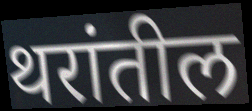
थरांतील